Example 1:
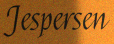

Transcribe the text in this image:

Jespersen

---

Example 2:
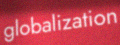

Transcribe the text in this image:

globalization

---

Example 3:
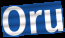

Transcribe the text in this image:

Oru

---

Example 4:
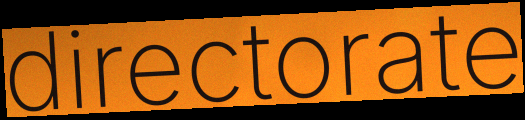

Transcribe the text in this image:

directorate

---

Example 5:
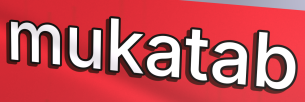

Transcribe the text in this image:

mukatab